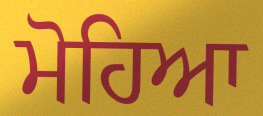
ਮੋਹਿਆ